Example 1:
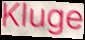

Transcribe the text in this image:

Kluge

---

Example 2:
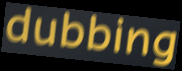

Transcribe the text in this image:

dubbing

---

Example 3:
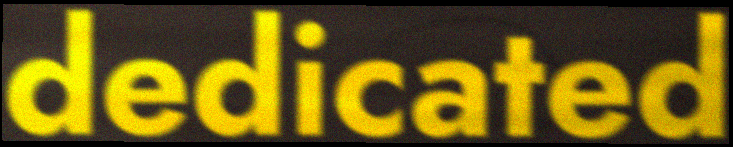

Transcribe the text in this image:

dedicated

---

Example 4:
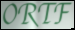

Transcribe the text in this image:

ORTF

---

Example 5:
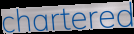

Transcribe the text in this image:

chartered